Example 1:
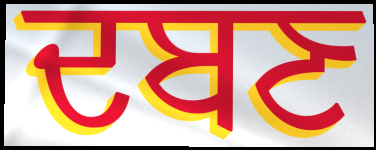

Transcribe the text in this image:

ਦਬਣ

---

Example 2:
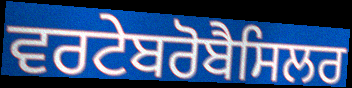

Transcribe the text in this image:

ਵਰਟੇਬਰੋਬੈਸਿਲਰ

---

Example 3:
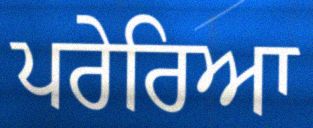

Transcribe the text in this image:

ਪਰੇਰਿਆ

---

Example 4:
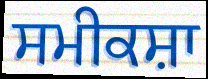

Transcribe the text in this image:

ਸਮੀਕਸ਼ਾ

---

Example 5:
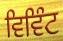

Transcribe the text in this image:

ਵਿਵਿੰਟ